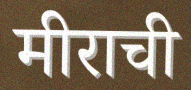
मीराची